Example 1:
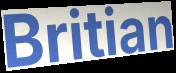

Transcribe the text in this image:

Britian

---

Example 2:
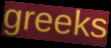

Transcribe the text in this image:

greeks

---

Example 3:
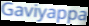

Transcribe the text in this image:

Gaviyappa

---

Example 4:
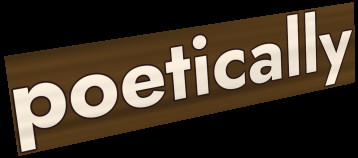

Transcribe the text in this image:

poetically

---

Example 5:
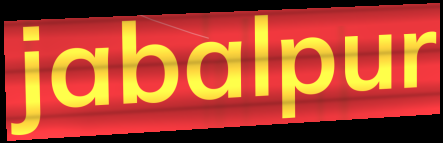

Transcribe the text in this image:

jabalpur